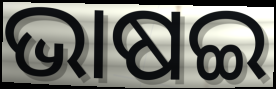
ଭାଷଇ